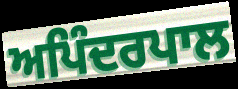
ਅਪਿੰਦਰਪਾਲ